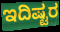
ಇದಿಷ್ಟರ